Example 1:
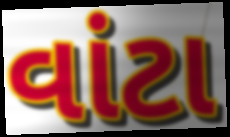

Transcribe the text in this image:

વાંટા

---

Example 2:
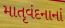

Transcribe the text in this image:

માતૃવંદનાનાં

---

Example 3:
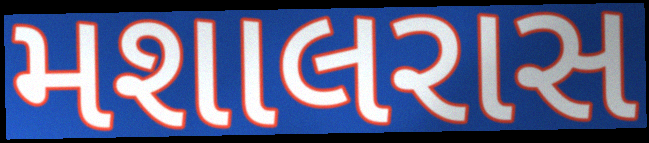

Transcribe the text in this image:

મશાલરાસ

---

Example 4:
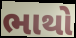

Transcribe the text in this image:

ભાથો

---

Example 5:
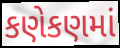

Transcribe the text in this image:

કણેકણમાં